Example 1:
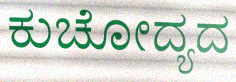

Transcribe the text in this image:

ಕುಚೋದ್ಯದ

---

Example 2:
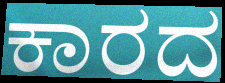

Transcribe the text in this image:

ಕಾರದ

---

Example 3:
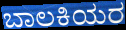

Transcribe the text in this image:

ಬಾಲಕಿಯರ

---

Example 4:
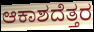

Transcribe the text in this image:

ಆಕಾಶದೆತ್ತರ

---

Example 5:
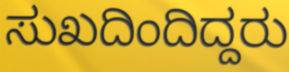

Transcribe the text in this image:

ಸುಖದಿಂದಿದ್ದರು